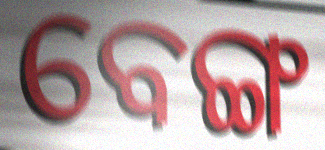
ବେଙ୍ଗ